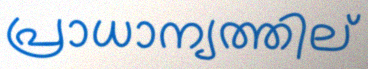
പ്രാധാന്യത്തില്